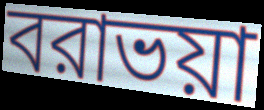
বরাভয়া